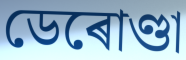
ডেৰোণ্ডা